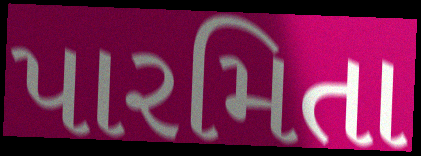
પારમિતા